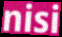
nisi